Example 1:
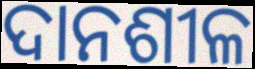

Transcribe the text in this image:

ଦାନଶୀଳ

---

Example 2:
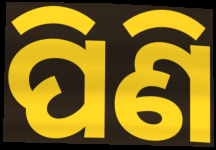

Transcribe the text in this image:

ପିଣି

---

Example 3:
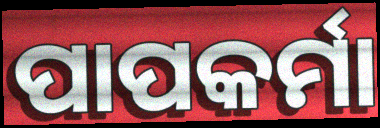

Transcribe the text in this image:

ପାପକର୍ମା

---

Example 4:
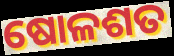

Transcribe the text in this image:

ଷୋଳଶତ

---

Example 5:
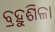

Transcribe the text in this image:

ବ୍ରହୁଶିଳା